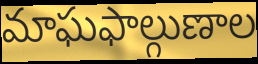
మాఘఫాల్గుణాల